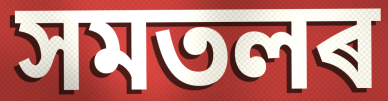
সমতলৰ